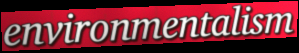
environmentalism